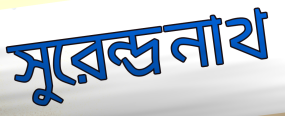
সুরেন্দ্রনাথ